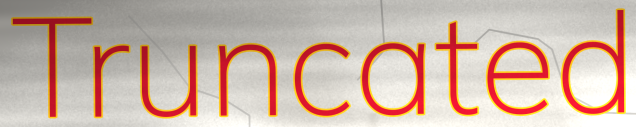
Truncated